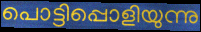
പൊട്ടിപ്പൊളിയുന്നു